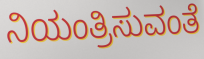
ನಿಯಂತ್ರಿಸುವಂತೆ